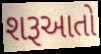
શરૂઆતો